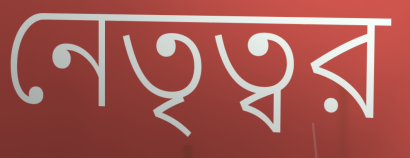
নেতৃত্বর